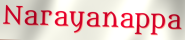
Narayanappa